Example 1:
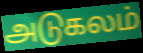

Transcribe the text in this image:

அடுகலம்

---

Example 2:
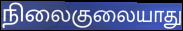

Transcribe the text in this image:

நிலைகுலையாது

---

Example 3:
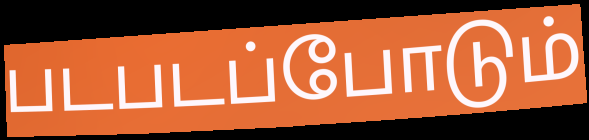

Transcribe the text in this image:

படபடப்போடும்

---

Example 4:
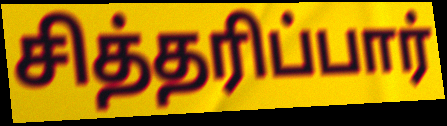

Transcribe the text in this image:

சித்தரிப்பார்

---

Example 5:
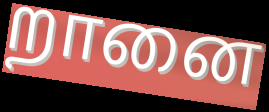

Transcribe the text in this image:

றானை